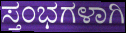
ಸ್ತಂಭಗಳಾಗಿ